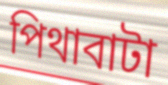
পিথাবাটা